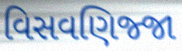
વિસવણિજ્જા